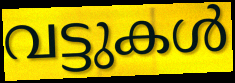
വട്ടുകൾ